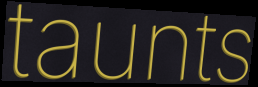
taunts